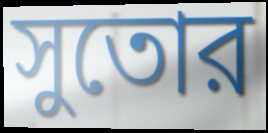
সুতোর